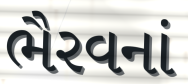
ભૈરવનાં